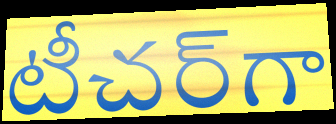
టీచర్‌గా